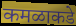
कमळाकडे